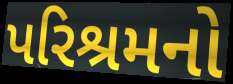
પરિશ્રમનો